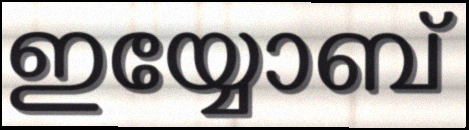
ഇയ്യോബ്